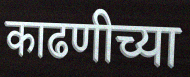
काढणीच्या